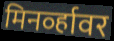
मिनर्व्हावर